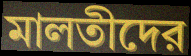
মালতীদের